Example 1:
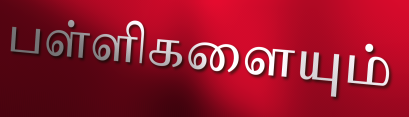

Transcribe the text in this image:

பள்ளிகளையும்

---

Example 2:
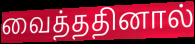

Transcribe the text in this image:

வைத்ததினால்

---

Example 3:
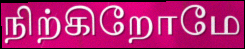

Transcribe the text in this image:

நிற்கிறோமே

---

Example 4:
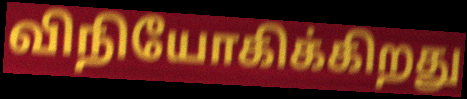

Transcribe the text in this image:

விநியோகிக்கிறது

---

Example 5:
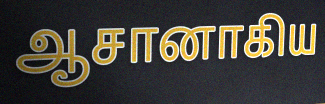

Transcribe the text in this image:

ஆசானாகிய